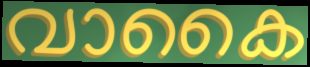
വാകൈ